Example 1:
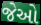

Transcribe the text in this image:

જેઓ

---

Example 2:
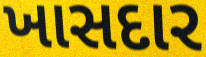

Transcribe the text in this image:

ખાસદાર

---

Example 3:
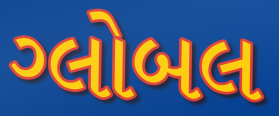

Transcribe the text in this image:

ગ્લોબલ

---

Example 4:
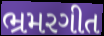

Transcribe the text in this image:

ભ્રમરગીત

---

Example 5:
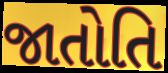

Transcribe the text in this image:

જાતોતિ